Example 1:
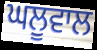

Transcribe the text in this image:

ਘਲੂਵਾਲ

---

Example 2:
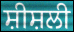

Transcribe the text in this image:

ਸ਼ੀਸ਼ਲੀ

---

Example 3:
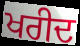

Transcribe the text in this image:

ਖਰੀਦ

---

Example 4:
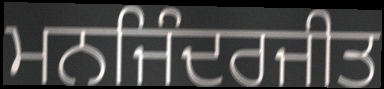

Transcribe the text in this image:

ਮਨਜਿੰਦਰਜੀਤ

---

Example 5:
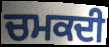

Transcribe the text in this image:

ਚਮਕਦੀ